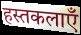
हस्तकलाएँ